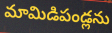
మామిడిపండ్లను